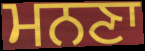
ਮਨਣਾ